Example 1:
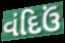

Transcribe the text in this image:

વંદિઉં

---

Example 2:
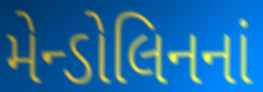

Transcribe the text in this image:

મેન્ડોલિનનાં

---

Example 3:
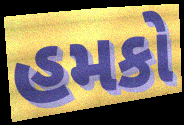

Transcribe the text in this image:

હમકો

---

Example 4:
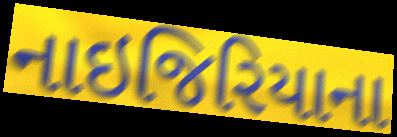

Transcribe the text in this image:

નાઇજિરિયાના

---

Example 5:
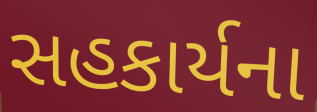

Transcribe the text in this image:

સહકાર્યના